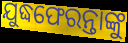
ଯୁଦ୍ଧଫେରନ୍ତାଙ୍କୁ